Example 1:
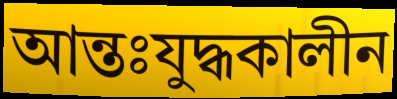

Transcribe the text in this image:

আন্তঃযুদ্ধকালীন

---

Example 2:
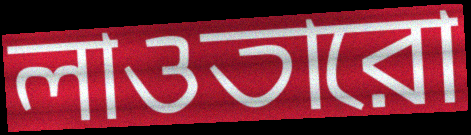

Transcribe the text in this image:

লাওতারো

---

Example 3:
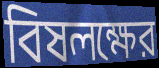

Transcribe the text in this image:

বিষলক্ষের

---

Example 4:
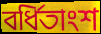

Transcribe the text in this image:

বর্ধিতাংশ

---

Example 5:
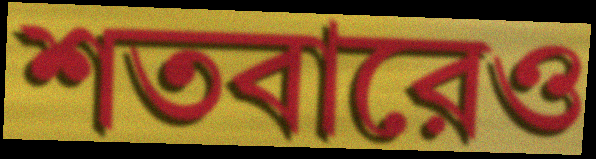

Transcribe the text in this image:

শতবারেও